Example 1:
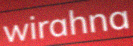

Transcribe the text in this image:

wirahna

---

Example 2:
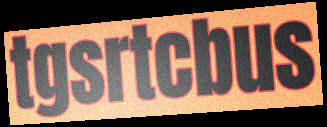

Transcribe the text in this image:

tgsrtcbus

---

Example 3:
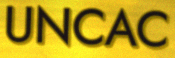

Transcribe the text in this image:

UNCAC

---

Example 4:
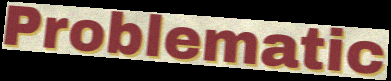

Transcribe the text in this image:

Problematic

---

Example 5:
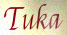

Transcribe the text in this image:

Tuka